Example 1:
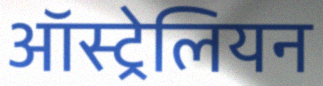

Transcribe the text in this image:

ऑस्ट्रेलियन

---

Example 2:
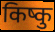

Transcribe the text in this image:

किष्कु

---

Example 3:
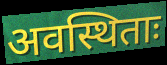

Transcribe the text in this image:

अवस्थिताः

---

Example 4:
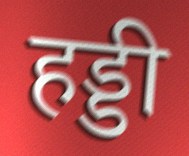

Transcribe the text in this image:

हड्डी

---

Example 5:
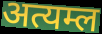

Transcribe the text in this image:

अत्यम्ल